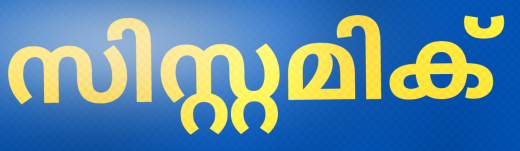
സിസ്റ്റമിക്